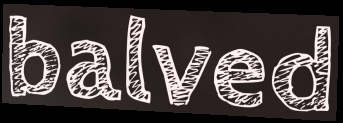
balved